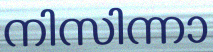
നിസിന്നാ